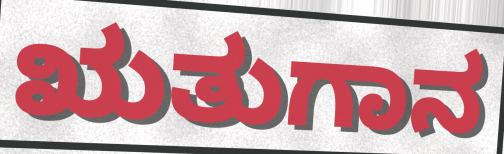
ಋತುಗಾನ